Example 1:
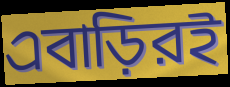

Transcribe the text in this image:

এবাড়িরই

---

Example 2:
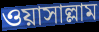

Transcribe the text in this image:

ওয়াসাল্লাম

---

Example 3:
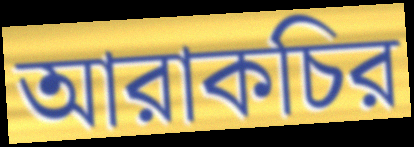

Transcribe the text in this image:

আরাকচির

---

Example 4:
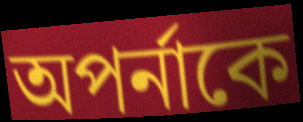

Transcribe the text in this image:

অপর্নাকে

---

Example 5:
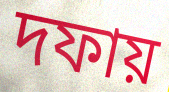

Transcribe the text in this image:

দফায়